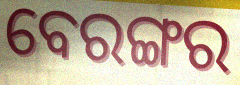
ବେରଙ୍ଗର